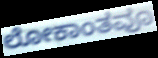
ಲೋಕಾಂತವೂ